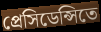
প্রেসিডেন্সিতে